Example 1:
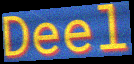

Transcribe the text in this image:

Deel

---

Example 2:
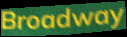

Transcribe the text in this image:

Broadway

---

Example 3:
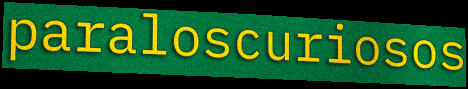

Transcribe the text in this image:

paraloscuriosos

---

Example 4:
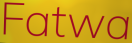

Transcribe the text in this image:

Fatwa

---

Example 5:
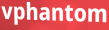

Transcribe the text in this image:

vphantom